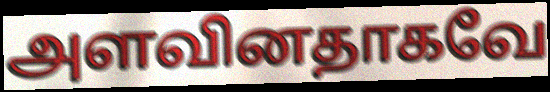
அளவினதாகவே